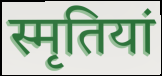
स्मृतियां